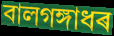
বালগঙ্গাধৰ